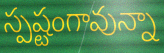
స్పష్టంగావున్నా